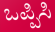
ಒಪ್ಪಿಸಿ